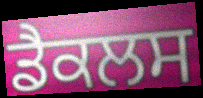
ਡੈਕਲਸ